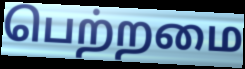
பெற்றமை